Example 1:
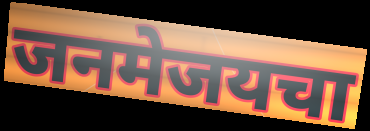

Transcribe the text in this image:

जनमेजयचा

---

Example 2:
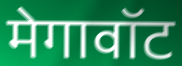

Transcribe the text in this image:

मेगावॉट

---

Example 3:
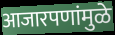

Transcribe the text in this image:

आजारपणांमुळे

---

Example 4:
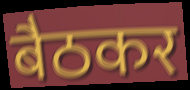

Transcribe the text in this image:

बैठकर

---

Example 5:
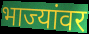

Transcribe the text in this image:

भाज्यांवर